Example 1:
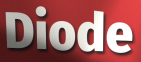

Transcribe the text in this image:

Diode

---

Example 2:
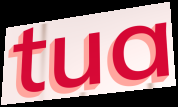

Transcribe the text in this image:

tua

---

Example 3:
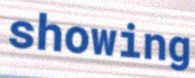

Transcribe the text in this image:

showing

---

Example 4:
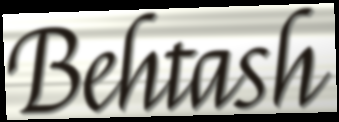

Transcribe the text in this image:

Behtash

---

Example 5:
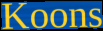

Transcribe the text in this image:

Koons